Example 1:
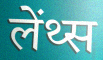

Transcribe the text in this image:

लेंथ्स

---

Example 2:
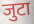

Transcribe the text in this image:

जुटा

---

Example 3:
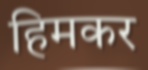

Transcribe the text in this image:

हिमकर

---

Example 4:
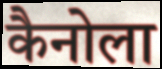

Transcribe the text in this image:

कैनोला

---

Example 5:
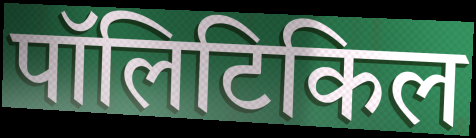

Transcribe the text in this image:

पॉलिटिकिल